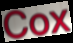
Cox